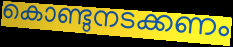
കൊണ്ടുനടക്കണം